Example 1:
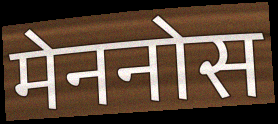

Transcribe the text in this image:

मेननोस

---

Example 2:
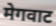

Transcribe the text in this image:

मेगवाट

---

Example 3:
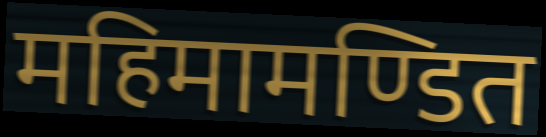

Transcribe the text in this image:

महिमामण्डित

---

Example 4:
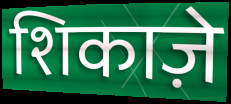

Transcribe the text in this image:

शिकाज़े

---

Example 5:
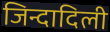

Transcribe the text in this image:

जिन्दादिली